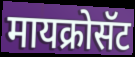
मायक्रोसॅट